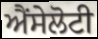
ਐਂਸੇਲੋਟੀ